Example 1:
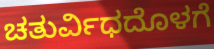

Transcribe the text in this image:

ಚತುರ್ವಿಧದೊಳಗೆ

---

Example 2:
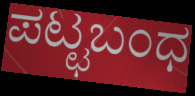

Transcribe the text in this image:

ಪಟ್ಟಬಂಧ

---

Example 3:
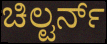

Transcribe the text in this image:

ಚಿಲ್ಟರ್ನ್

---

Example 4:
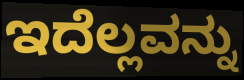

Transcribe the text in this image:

ಇದೆಲ್ಲವನ್ನು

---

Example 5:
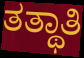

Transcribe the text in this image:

ತತ್ಥಾತಿ